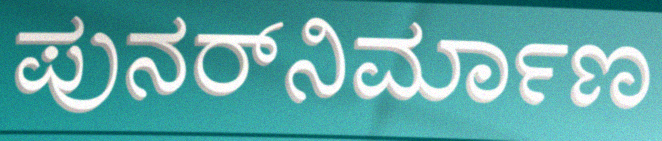
ಪುನರ್‌ನಿರ್ಮಾಣ